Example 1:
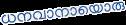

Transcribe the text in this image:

ധനവാനായൊരു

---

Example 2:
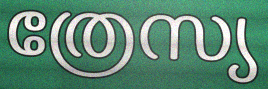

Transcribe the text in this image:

ത്രേസ്യ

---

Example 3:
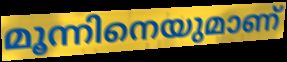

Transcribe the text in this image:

മൂന്നിനെയുമാണ്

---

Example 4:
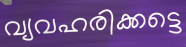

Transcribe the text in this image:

വ്യവഹരിക്കട്ടെ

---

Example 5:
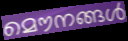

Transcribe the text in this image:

മൌനങ്ങൾ